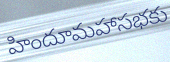
హిందూమహాసభకు